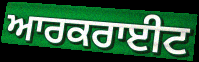
ਆਰਕਰਾਈਟ